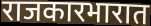
राजकारभारात